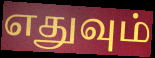
எதுவும்